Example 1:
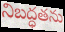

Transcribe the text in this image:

నిబద్ధతను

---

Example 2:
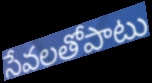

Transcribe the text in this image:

సేవలతోపాటు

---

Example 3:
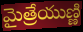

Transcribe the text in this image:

మైత్రేయుణ్ణి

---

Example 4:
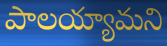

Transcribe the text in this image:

పాలయ్యామని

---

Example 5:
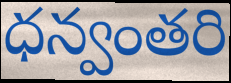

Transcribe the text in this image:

ధన్వంతరి